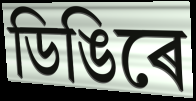
ডিঙিৰে